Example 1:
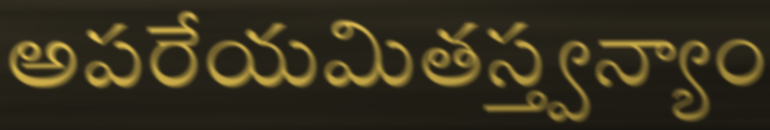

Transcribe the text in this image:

అపరేయమితస్త్వన్యాం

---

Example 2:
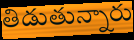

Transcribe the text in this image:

తిడుతున్నారు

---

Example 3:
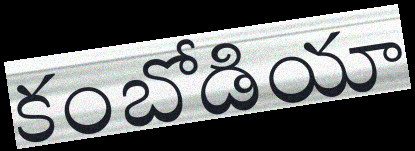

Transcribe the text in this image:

కంబోడియా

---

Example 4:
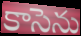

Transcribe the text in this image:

కాసెను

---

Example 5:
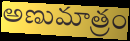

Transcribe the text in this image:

అణుమాత్రం